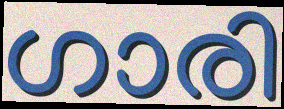
ഗാരി